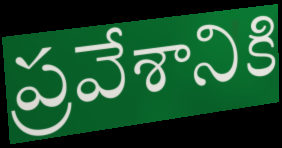
ప్రవేశానికి